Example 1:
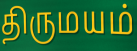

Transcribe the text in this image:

திருமயம்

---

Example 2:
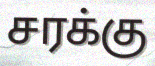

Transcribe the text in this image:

சரக்கு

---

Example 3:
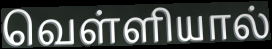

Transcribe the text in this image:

வெள்ளியால்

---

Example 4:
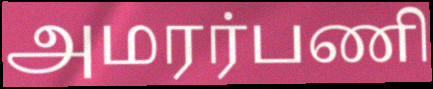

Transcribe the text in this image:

அமரர்பணி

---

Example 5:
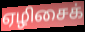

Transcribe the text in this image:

ஏழிசைக்